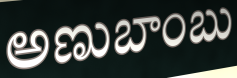
అణుబాంబు